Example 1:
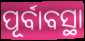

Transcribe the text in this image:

ପୂର୍ବାବସ୍ଥା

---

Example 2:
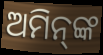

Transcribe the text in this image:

ଅମିନ୍‌ଙ୍କ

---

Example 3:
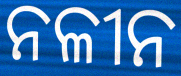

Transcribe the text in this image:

ନଳୀନ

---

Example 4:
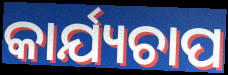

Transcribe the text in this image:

କାର୍ଯ୍ୟଚାପ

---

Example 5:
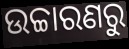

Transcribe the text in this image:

ଉଚ୍ଚାରଣରୁ